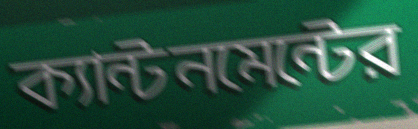
ক্যান্টনমেন্টের